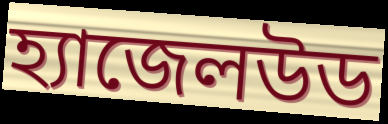
হ্যাজেলউড